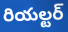
రియల్టర్